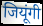
जियूंगी